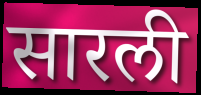
सारली